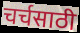
चर्चसाठी